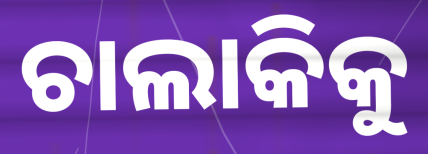
ଚାଲାକିକୁ